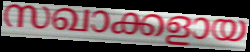
സഖാക്കളായ